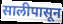
सालीपासून